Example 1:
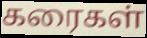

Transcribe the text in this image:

கரைகள்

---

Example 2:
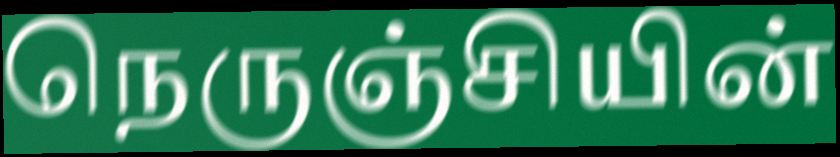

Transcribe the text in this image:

நெருஞ்சியின்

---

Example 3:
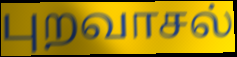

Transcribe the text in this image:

புறவாசல்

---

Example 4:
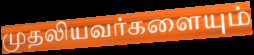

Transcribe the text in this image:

முதலியவர்களையும்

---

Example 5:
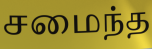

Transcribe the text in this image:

சமைந்த